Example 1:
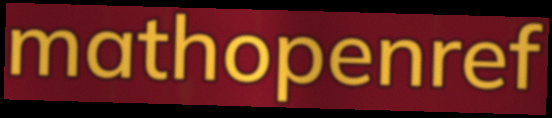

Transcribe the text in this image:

mathopenref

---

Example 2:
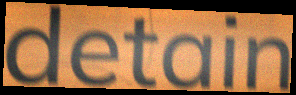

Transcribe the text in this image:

detain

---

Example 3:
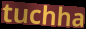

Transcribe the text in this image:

tuchha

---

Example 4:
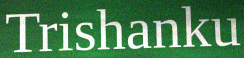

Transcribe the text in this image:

Trishanku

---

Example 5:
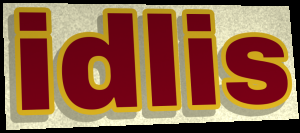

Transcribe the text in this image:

idlis